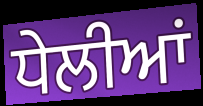
ਧੇਲੀਆਂ